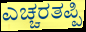
ಎಚ್ಚರತಪ್ಪಿ